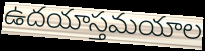
ఉదయాస్తమయాల